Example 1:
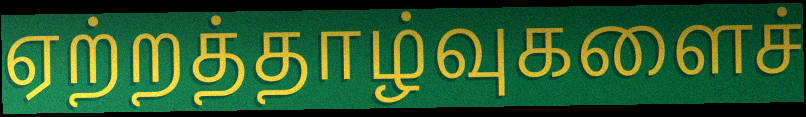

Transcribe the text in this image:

ஏற்றத்தாழ்வுகளைச்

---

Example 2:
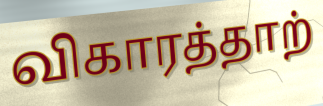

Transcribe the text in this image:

விகாரத்தாற்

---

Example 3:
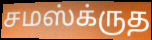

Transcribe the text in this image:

சமஸ்க்ருத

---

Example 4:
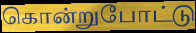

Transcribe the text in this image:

கொன்றுபோட்டு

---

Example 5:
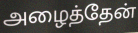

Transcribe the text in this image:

அழைத்தேன்